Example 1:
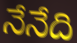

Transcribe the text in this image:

నేనేది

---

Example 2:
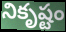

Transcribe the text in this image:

నికృష్టం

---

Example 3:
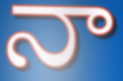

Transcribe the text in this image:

నా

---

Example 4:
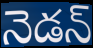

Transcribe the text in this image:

నెడన్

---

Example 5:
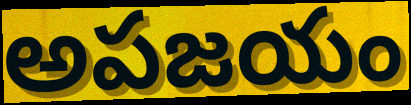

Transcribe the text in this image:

అపజయం